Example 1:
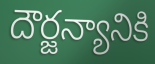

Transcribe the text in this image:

దౌర్జన్యానికి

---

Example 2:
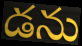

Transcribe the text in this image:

డను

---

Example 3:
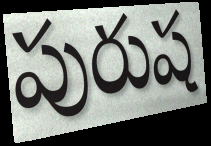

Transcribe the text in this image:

పురుష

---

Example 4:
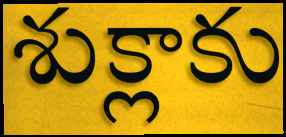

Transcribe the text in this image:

శుక్లాకు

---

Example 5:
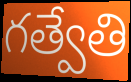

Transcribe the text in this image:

గత్వేతి